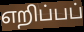
எறிப்பப்